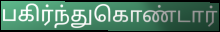
பகிர்ந்துகொண்டார்